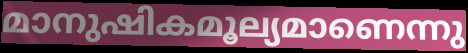
മാനുഷികമൂല്യമാണെന്നു